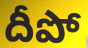
దీపో